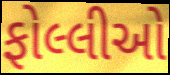
ફોલ્લીઓ